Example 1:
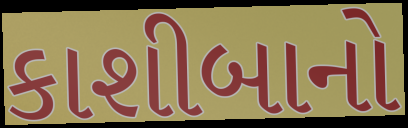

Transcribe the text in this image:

કાશીબાનો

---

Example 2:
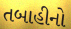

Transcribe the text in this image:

તબાહીનો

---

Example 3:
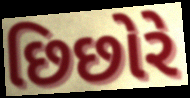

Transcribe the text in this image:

છિછોરે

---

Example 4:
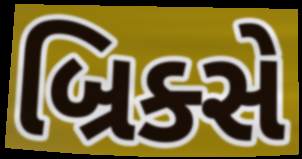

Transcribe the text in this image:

બ્રિક્સે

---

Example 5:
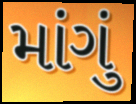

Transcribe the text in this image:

માંગું